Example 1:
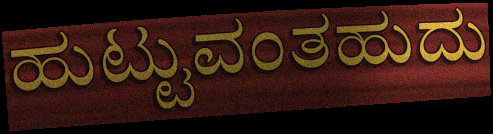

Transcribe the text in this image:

ಹುಟ್ಟುವಂತಹುದು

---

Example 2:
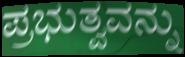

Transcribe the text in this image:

ಪ್ರಭುತ್ವವನ್ನು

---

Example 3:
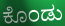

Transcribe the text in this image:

ಕೊಂಡು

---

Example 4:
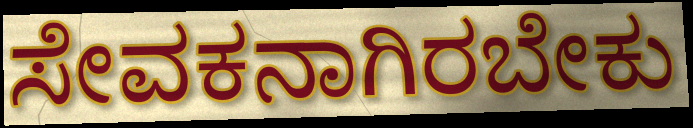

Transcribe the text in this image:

ಸೇವಕನಾಗಿರಬೇಕು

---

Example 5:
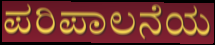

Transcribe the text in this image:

ಪರಿಪಾಲನೆಯ